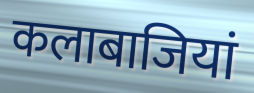
कलाबाजियां